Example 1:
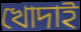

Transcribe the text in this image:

খোদাই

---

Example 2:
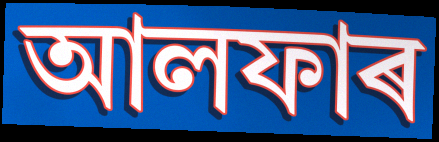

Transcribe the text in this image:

আলফাৰ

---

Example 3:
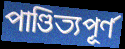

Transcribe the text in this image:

পাণ্ডিত্যপূৰ্ণ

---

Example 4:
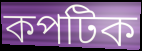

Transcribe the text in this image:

কপটিক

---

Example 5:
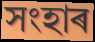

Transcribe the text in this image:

সংহাৰ